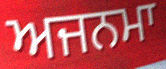
ਅਜਨਮਾ